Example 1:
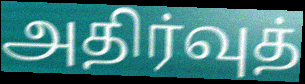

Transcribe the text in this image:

அதிர்வுத்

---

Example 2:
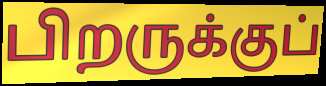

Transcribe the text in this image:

பிறருக்குப்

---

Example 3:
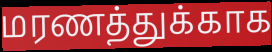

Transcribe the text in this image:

மரணத்துக்காக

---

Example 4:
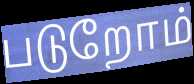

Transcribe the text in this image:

படுறோம்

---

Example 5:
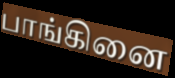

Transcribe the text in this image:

பாங்கினை